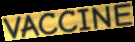
VACCINE